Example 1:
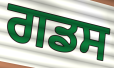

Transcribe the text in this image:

ਗਡਸ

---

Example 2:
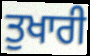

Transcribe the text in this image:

ਤੁਖਾਰੀ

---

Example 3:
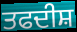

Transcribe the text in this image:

ਤਫਦੀਸ਼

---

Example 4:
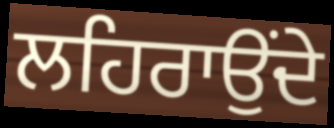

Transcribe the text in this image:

ਲਹਿਰਾਉਂਦੇ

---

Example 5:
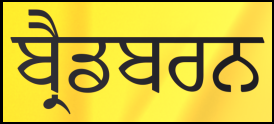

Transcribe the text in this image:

ਬ੍ਰੈਡਬਰਨ